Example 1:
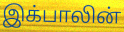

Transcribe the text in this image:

இக்பாலின்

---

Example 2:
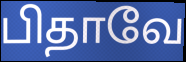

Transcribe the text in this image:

பிதாவே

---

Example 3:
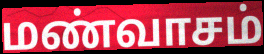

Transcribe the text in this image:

மண்வாசம்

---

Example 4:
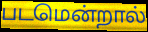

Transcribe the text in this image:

படமென்றால்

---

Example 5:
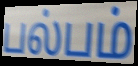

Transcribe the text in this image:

பல்பம்